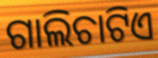
ଗାଲିଚାଟିଏ